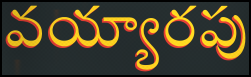
వయ్యారపు